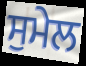
ਸੁਮੇਲ